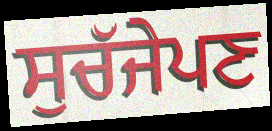
ਸੁਚੱਜੇਪਣ